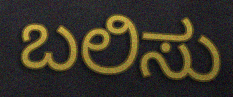
ಬಲಿಸು